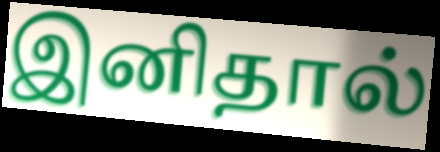
இனிதால்